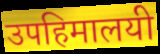
उपहिमालयी